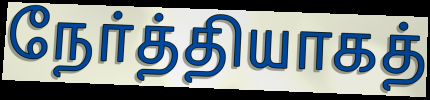
நேர்த்தியாகத்